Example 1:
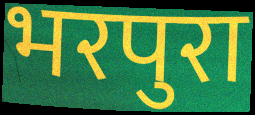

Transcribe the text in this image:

भरपुरा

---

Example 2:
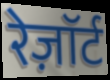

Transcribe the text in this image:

रेज़ॉर्ट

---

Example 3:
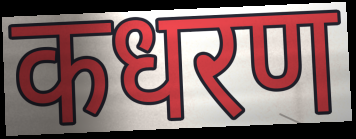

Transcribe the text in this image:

कधरण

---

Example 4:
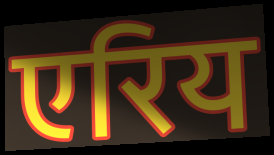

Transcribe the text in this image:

एरिय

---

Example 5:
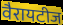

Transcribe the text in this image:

वैरायटीज